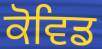
ਕੋਵਿਡ